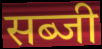
सब्जी